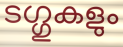
ടഗ്ഗുകളും